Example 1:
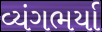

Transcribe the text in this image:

વ્યંગભર્યા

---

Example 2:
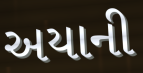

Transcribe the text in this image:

અયાની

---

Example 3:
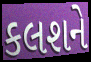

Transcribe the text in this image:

કલશને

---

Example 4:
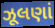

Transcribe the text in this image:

ઝૂલણાં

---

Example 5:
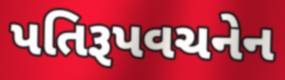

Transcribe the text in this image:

પતિરૂપવચનેન